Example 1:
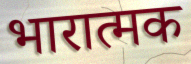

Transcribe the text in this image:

भारात्मक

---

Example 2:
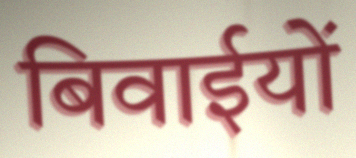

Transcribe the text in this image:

बिवाईयों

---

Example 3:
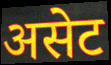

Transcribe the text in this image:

असेट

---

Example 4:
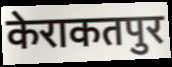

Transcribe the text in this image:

केराकतपुर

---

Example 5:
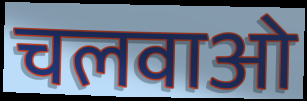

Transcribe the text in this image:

चलवाओ